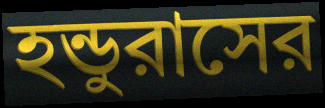
হন্ডুরাসের